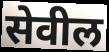
सेवील